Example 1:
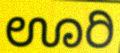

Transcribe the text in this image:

ಊರಿ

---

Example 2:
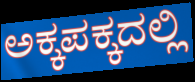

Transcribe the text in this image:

ಅಕ್ಕಪಕ್ಕದಲ್ಲಿ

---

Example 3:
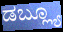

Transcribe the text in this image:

ಡಬ್ಲ್ಯೂ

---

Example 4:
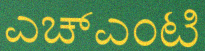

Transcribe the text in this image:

ಎಚ್ಎಂಟಿ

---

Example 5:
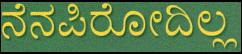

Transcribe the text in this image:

ನೆನಪಿರೋದಿಲ್ಲ